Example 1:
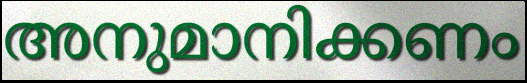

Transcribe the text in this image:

അനുമാനിക്കണം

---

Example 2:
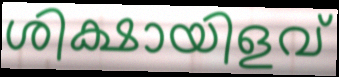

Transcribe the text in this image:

ശിക്ഷായിളവ്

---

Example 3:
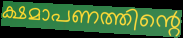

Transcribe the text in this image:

ക്ഷമാപണത്തിന്റെ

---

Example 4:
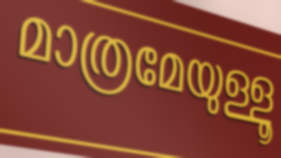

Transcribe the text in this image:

മാത്രമേയുള്ളൂ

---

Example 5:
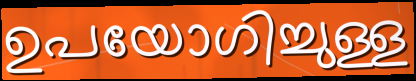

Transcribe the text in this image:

ഉപയോഗിച്ചുള്ള